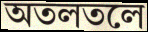
অতলতলে